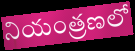
నియంత్రణలో